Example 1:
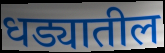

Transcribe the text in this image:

धड्यातील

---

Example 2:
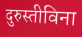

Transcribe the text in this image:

दुरुस्तीविना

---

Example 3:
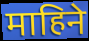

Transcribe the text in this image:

माहिने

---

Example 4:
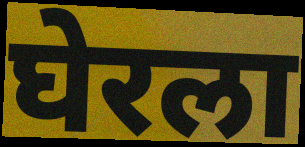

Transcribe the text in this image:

घेरला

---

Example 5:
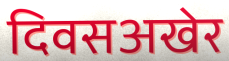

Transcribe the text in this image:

दिवसअखेर